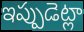
ఇప్పుడెట్లా